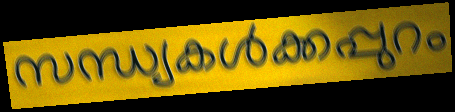
സന്ധ്യകൾക്കപ്പുറം